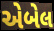
એબેલ